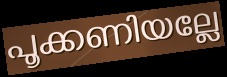
പൂക്കണിയല്ലേ